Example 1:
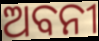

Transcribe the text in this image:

ଅବନୀ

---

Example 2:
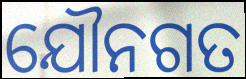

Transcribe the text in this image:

ଯୌନଗତ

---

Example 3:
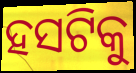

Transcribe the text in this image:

ହସଟିକୁ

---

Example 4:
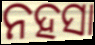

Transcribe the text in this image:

ନହସା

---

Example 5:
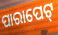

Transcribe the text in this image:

ପାରାପେଟ୍